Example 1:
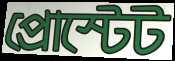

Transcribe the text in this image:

প্রোস্টেট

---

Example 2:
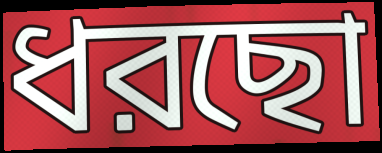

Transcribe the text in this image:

ধরছো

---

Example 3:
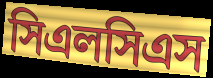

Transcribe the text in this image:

সিএলসিএস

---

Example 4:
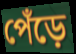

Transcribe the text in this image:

পেঁড়ে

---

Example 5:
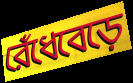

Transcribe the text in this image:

রেঁধেবেড়ে